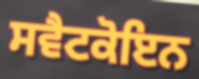
ਸਵੈਟਕੋਇਨ